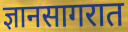
ज्ञानसागरात